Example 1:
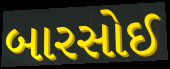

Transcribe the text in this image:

બારસોઈ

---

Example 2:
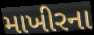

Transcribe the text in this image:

માખીરના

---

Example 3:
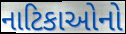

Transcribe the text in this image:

નાટિકાઓનો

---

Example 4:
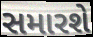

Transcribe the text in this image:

સમારશે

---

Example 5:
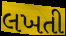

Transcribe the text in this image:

લખતી